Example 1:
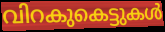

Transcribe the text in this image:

വിറകുകെട്ടുകൾ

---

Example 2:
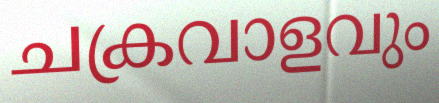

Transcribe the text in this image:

ചക്രവാളവും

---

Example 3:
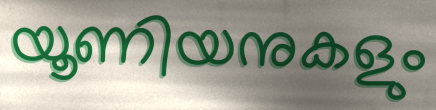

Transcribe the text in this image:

യൂണിയനുകളും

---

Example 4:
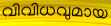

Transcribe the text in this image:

വിവിധവുമായ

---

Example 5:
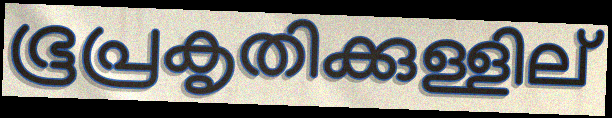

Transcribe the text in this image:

ഭൂപ്രകൃതിക്കുള്ളില്